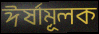
ঈর্ষামূলক